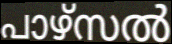
പാഴ്സൽ